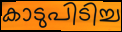
കാടുപിടിച്ച